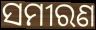
ସମୀରଣ